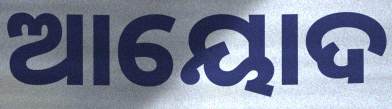
ଆୟୋଦ